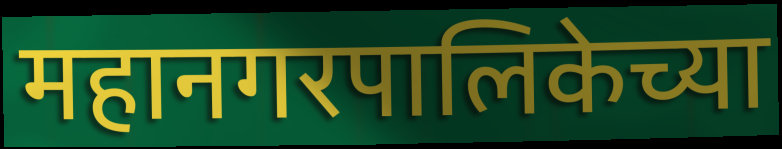
महानगरपालिकेच्या